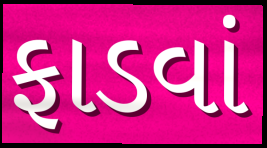
ફાડવાં